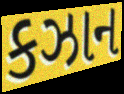
કઝાન